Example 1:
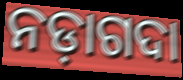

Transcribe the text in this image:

ନଡ଼ାଗଦା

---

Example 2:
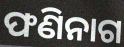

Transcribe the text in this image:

ଫଣିନାଗ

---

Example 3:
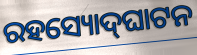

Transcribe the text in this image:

ରହସ୍ୟୋଦ୍‍ଘାଟନ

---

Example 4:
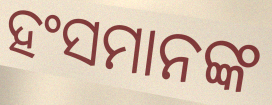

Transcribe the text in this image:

ହଂସମାନଙ୍କ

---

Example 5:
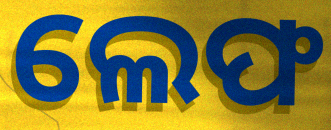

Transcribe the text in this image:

ଲେଫ